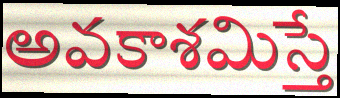
అవకాశమిస్తే